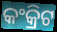
କଂକ୍ରିଟ